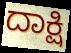
ದಾಕ್ಷಿ